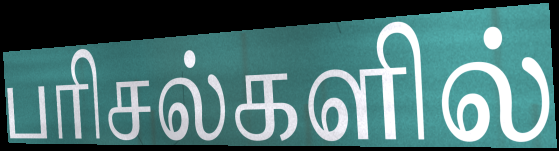
பரிசல்களில்